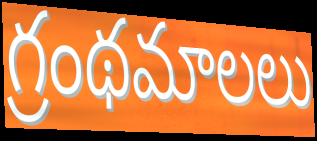
గ్రంథమాలలు